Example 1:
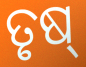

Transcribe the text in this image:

ତୃଷ୍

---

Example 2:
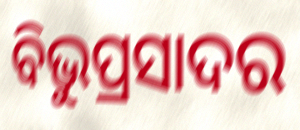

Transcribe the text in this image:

ବିଭୁପ୍ରସାଦର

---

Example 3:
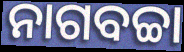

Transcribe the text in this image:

ନାଗବଚ୍ଚା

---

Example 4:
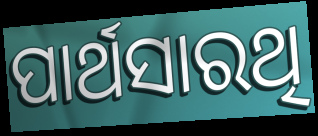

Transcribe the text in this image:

ପାର୍ଥସାରଥି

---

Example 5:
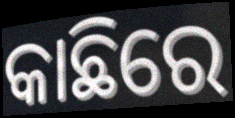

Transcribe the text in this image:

କାଛିରେ